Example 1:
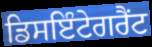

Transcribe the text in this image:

ਡਿਸਇੰਟੇਗਰੈਂਟ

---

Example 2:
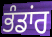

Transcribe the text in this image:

ਭੰਡਾਂਰ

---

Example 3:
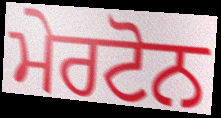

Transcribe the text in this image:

ਮੇਰਟੋਨ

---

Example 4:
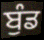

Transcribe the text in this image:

ਬੁੰਡ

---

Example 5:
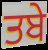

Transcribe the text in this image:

ਤਬੇ